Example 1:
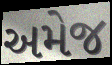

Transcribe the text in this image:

અમેજ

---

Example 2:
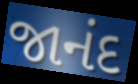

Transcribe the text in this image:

જાનંદ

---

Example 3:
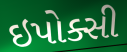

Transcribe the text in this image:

ઇપોક્સી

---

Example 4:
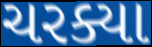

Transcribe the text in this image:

ચરક્યા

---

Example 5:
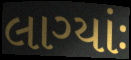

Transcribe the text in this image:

લાગ્યાંઃ